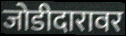
जोडीदारावर